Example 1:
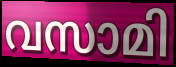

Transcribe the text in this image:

വസാമി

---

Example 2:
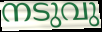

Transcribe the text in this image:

നടുവു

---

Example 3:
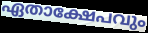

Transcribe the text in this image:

ഏതാക്ഷേപവും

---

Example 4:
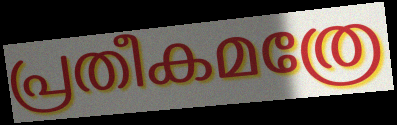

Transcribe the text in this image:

പ്രതീകമത്രേ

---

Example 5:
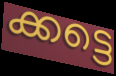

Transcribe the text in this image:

ക്കട്ടെ